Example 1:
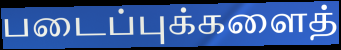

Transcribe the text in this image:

படைப்புக்களைத்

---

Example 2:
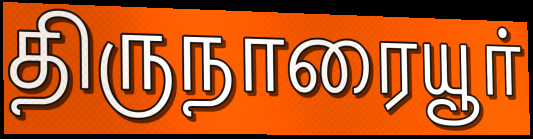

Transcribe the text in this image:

திருநாரையூர்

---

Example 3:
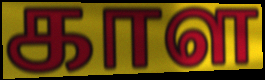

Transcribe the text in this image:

காள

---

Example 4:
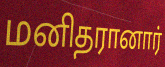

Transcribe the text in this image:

மனிதரானார்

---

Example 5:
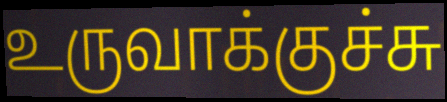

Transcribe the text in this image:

உருவாக்குச்சு